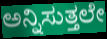
ಅನ್ನಿಸುತ್ತಲೇ